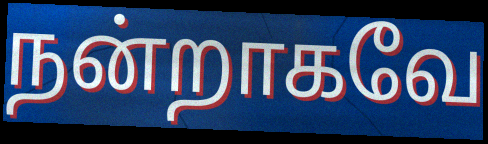
நன்றாகவே